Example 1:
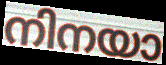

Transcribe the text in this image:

നിനയാ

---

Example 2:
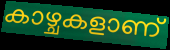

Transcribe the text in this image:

കാഴ്ചകളാണ്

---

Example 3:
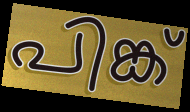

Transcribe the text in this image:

പിങ്ക്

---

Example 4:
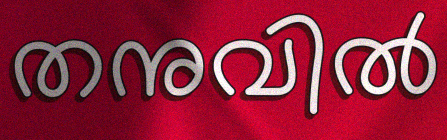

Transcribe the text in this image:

തനുവിൽ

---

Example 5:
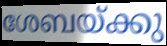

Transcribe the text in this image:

ശേബയ്ക്കു